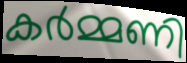
കർമ്മണി